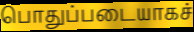
பொதுப்படையாகச்